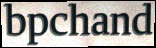
bpchand